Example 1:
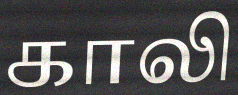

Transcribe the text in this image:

காலி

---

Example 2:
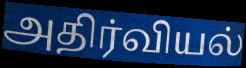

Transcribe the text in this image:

அதிர்வியல்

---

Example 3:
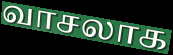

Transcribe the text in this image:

வாசலாக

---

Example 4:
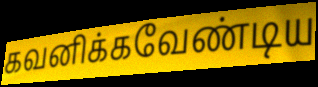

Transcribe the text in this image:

கவனிக்கவேண்டிய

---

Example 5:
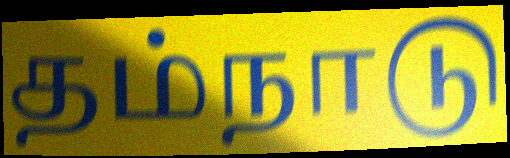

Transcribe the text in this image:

தம்நாடு